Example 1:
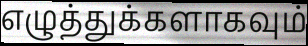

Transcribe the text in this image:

எழுத்துக்களாகவும்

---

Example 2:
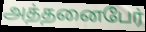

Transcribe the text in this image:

அத்தனைபேர்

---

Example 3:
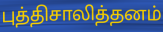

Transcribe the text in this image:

புத்திசாலித்தனம்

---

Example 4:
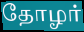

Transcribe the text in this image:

தோழர்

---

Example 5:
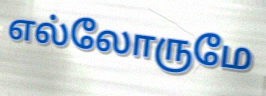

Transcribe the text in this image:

எல்லோருமே